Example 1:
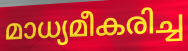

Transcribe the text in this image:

മാധ്യമീകരിച്ച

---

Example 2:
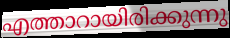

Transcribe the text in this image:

എത്താറായിരിക്കുന്നു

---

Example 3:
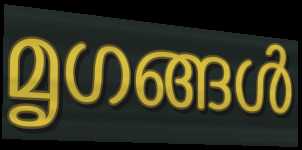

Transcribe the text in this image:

മൃഗങ്ങൾ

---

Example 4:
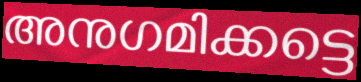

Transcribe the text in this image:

അനുഗമിക്കട്ടെ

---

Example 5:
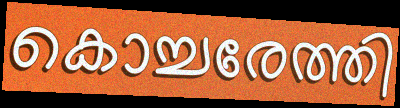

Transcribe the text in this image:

കൊച്ചരേത്തി